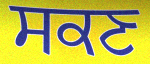
ਸਕਣ